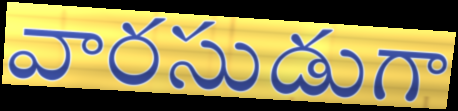
వారసుడుగా